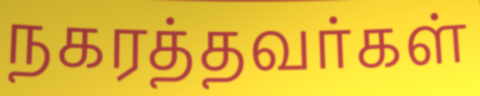
நகரத்தவர்கள்